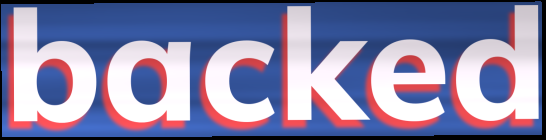
backed